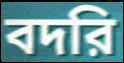
বদরি